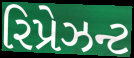
રિપ્રેઝન્ટ